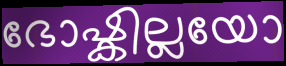
ഭോഷ്കില്ലയോ